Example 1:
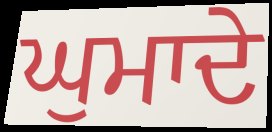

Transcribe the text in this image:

ਘੁਮਾਦੇ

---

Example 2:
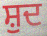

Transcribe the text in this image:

ਸ਼ੁਦ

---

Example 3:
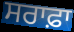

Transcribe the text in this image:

ਸਰਾਫ਼ਾ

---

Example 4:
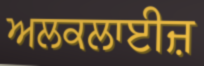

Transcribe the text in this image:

ਅਲਕਲਾਈਜ਼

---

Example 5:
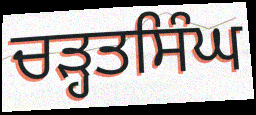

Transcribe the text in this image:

ਚੜ੍ਹਤਸਿੰਘ